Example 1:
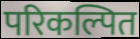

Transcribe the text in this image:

परिकल्पित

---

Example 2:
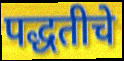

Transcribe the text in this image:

पद्धतीचे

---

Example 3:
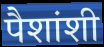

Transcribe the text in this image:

पैशांशी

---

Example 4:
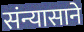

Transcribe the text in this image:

संन्यासाने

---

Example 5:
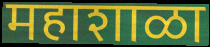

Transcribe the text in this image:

महाशाळा